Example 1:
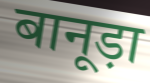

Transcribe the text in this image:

बानूड़ा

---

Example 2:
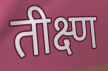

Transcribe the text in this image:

तीक्ष्ण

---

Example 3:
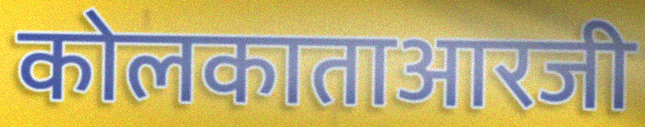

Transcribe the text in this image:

कोलकाताआरजी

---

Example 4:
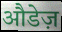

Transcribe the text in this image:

औडेज़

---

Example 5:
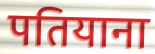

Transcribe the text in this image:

पतियाना